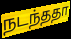
நடந்ததா